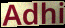
Adhi